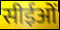
सीईओं